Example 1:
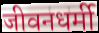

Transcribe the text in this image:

जीवनधर्मी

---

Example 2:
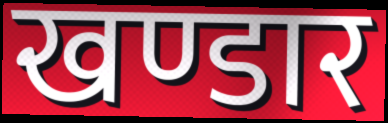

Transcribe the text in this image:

खण्डार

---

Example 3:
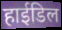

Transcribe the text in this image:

हाईडिल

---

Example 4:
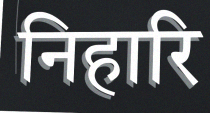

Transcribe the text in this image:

निहारि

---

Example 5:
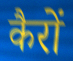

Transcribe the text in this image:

कैरों